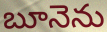
బూనెను